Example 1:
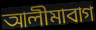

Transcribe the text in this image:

আলীমাবাগ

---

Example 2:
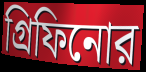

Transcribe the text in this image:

গ্রিফিনোর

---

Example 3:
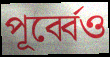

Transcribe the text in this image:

পূর্ব্বেও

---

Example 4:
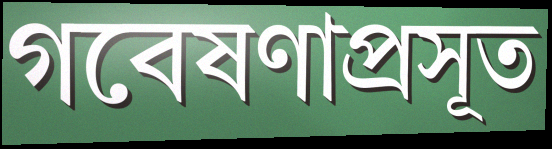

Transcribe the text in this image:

গবেষণাপ্রসূত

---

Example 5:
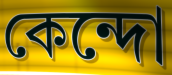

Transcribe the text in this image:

কেন্দো